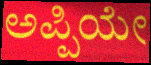
ಅಪ್ಪಿಯೇ